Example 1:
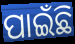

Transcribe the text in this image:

ପାଇଁଛି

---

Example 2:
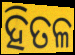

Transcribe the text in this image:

ହିତଳ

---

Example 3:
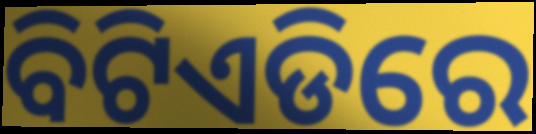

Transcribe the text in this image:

ବିଟିଏଡିରେ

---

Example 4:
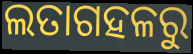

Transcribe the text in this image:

ଲତାଗହଳରୁ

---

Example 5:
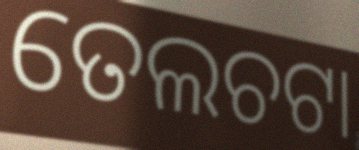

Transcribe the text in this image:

ତେଲଚଟା